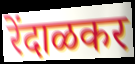
रेंदाळकर